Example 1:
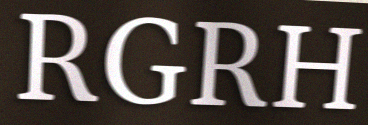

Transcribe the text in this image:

RGRH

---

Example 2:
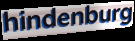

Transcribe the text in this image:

hindenburg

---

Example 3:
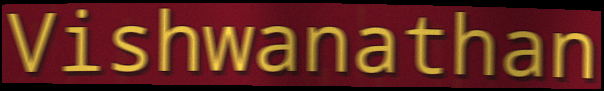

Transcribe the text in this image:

Vishwanathan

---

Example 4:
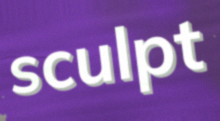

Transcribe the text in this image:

sculpt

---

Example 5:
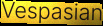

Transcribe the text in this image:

Vespasian